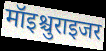
मॉइश्चुराइजर